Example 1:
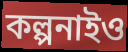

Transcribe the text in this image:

কল্পনাইও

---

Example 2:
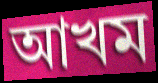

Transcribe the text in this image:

আখম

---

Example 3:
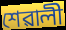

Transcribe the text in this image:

শেৱালী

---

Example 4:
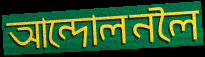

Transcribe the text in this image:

আন্দোলনলৈ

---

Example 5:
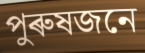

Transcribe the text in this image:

পুৰুষজনে